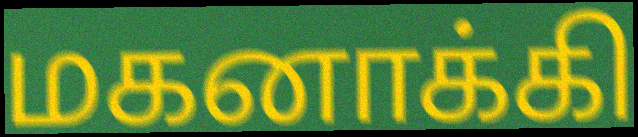
மகனாக்கி